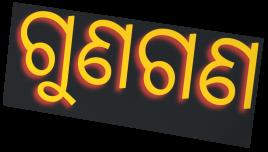
ଗୁଣଗଣ